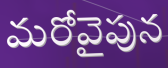
మరోవైపున